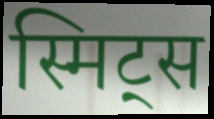
स्मिट्स